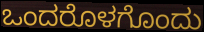
ಒಂದರೊಳಗೊಂದು